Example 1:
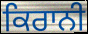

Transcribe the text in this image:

ਕਿਰਾਨੀ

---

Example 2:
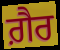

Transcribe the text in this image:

ਗ਼ੈਰ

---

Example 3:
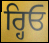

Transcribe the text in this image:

ਰ੍ਹਿਓ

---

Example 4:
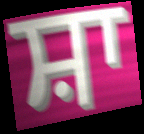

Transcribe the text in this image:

ਸ਼ਾ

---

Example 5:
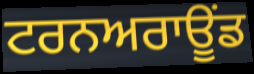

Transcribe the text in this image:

ਟਰਨਅਰਾਊਂਡ